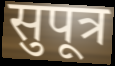
सुपूत्र